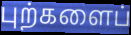
புற்களைப்